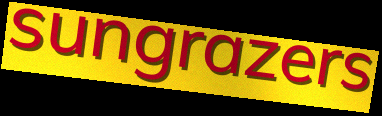
sungrazers